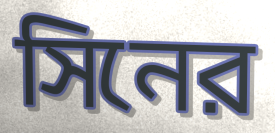
সিনের